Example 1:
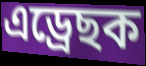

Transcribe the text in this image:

এড্ৰেছক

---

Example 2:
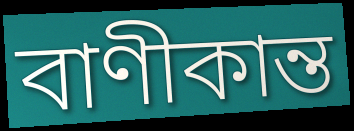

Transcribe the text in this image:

বাণীকান্ত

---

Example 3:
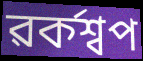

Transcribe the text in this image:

ৱৰ্কশ্বপ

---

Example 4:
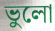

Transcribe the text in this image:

ভুলো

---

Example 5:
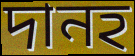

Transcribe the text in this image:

দানহ